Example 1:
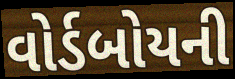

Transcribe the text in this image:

વોર્ડબોયની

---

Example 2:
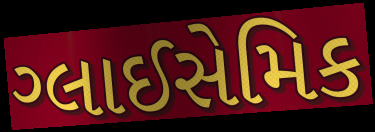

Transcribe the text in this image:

ગ્લાઈસેમિક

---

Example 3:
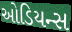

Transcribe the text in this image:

ઓડિયન્સ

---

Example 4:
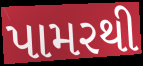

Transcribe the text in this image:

પામરથી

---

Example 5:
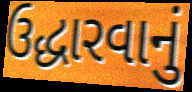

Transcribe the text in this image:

ઉદ્ધારવાનું